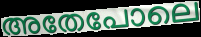
അതേപോലെ